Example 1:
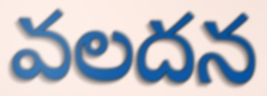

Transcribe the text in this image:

వలదన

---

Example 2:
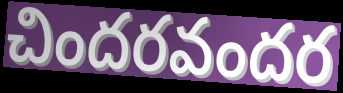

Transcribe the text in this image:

చిందరవందర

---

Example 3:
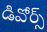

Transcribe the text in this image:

డివోర్స్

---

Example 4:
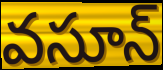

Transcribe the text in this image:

వసూన్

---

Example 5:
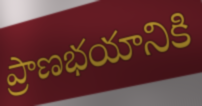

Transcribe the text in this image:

ప్రాణభయానికి